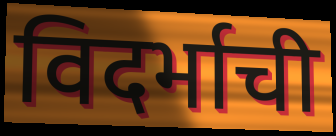
विदर्भाची